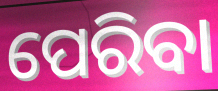
ପେରିବା